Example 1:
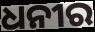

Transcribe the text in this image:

ଧନୀର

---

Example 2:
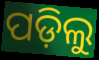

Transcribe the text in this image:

ପଡ଼ିଲୁ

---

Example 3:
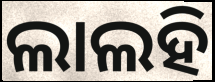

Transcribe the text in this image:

ଲାଲହି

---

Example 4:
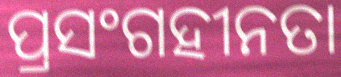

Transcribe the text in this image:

ପ୍ରସଂଗହୀନତା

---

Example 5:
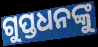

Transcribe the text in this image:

ଗୁପ୍ତଧନଙ୍କୁ